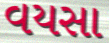
વયસા